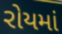
રોયમાં